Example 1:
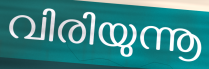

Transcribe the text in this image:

വിരിയുന്നൂ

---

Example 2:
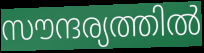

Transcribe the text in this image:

സൗന്ദര്യത്തിൽ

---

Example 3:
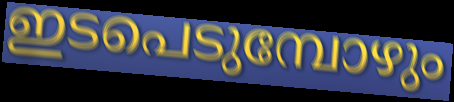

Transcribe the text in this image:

ഇടപെടുമ്പോഴും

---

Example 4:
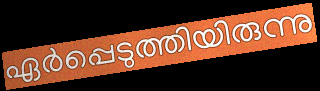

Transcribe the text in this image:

ഏർപ്പെടുത്തിയിരുന്നു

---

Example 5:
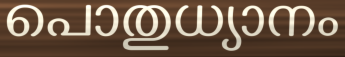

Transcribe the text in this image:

പൊതുധ്യാനം